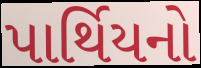
પાર્થિયનો